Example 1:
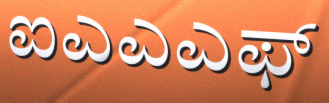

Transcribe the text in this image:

ಐಎಎಎಫ್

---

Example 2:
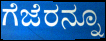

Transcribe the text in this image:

ಗೆಜೆರನ್ನೂ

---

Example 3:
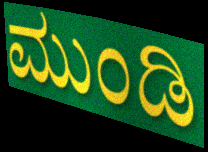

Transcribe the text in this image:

ಮುಂಡಿ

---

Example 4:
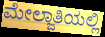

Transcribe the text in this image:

ಮೇಲ್ಜಾತಿಯಲ್ಲಿ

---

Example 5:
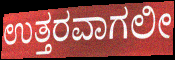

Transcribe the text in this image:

ಉತ್ತರವಾಗಲೀ